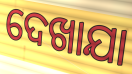
ଦେଖାଯା